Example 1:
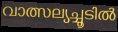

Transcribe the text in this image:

വാത്സല്യച്ചൂടിൽ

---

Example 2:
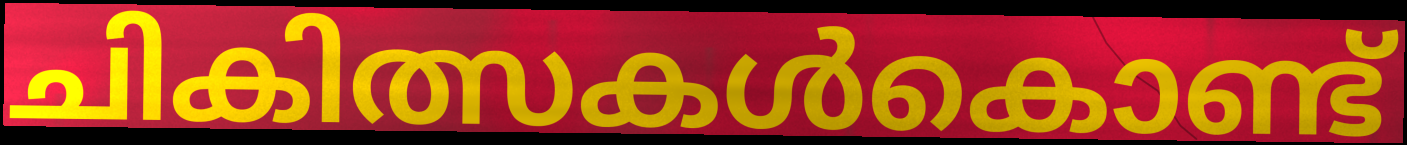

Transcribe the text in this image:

ചികിത്സകൾകൊണ്ട്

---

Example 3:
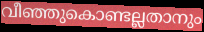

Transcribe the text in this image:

വീഞ്ഞുകൊണ്ടല്ലതാനും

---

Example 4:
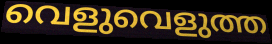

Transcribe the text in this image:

വെളുവെളുത്ത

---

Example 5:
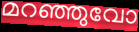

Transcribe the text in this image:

മറഞ്ഞുവോ